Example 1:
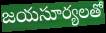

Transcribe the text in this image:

జయసూర్యలతో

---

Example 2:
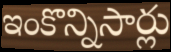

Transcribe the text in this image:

ఇంకొన్నిసార్లు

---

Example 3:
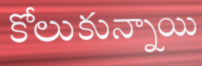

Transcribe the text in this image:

కోలుకున్నాయి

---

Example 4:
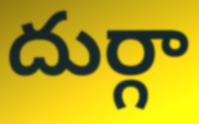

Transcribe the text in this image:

దుర్గా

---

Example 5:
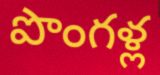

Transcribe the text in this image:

పొంగళ్ల